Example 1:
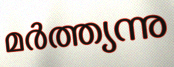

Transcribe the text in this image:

മർത്ത്യന്നു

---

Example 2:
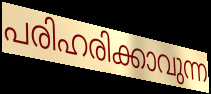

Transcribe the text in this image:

പരിഹരിക്കാവുന്ന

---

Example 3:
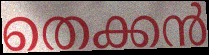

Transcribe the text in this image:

തെക്കൻ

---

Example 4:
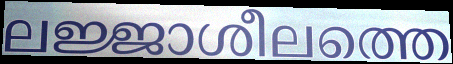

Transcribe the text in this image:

ലജ്ജാശീലത്തെ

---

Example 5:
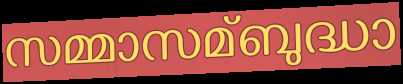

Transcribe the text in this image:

സമ്മാസമ്ബുദ്ധാ